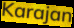
Karajan